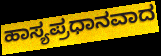
ಹಾಸ್ಯಪ್ರಧಾನವಾದ